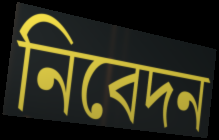
নিবেদন